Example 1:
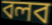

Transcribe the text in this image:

বলব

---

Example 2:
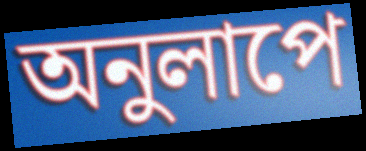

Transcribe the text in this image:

অনুলাপে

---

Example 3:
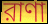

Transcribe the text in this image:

রাণা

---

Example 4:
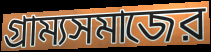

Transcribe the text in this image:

গ্রাম্যসমাজের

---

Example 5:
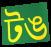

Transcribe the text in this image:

টঙ